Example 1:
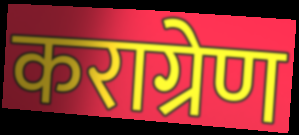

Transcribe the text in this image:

कराग्रेण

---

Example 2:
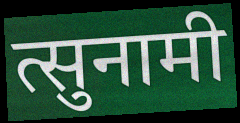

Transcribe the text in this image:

त्सुनामी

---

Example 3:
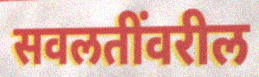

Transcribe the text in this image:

सवलतींवरील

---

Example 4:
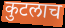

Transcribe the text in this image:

कुटलाच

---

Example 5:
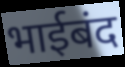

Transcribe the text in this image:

भाईबंद